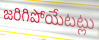
జరిగిపోయేటట్లు